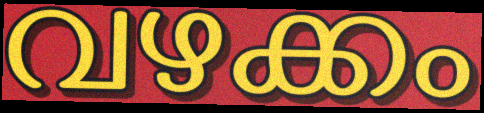
വഴക്കം